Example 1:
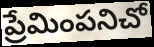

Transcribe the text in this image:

ప్రేమింపనిచో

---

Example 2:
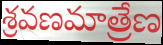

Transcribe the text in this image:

శ్రవణమాత్రేణ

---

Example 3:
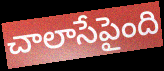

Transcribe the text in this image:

చాలాసేపైంది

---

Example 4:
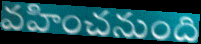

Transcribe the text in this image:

వహించనుంది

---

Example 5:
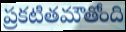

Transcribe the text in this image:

ప్రకటితమౌతోంది